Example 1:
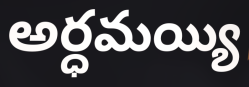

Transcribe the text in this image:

అర్ధమయ్యి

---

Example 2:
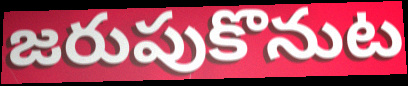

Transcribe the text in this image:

జరుపుకొనుట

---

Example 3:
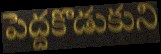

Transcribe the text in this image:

పెద్దకొడుకుని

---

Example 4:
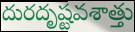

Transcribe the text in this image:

దురదృష్టవశాత్తు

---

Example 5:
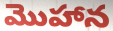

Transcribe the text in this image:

మొహాన